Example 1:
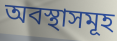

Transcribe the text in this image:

অবস্থাসমূহ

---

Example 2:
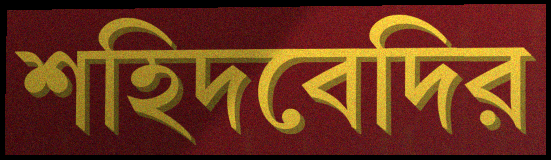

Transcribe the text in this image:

শহিদবেদির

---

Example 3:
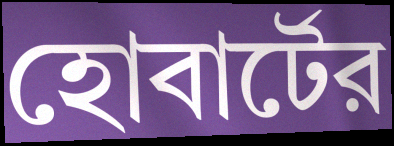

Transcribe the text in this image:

হোবার্টের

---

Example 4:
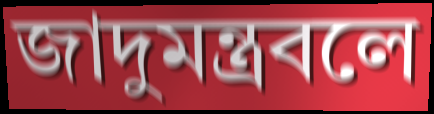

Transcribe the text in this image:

জাদুমন্ত্রবলে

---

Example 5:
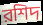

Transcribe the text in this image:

রশিদ